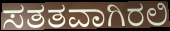
ಸತತವಾಗಿರಲಿ